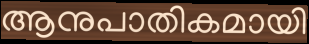
ആനുപാതികമായി